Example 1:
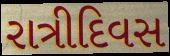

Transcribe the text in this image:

રાત્રીદિવસ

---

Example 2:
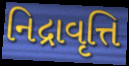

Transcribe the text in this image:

નિદ્રાવૃત્તિ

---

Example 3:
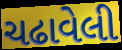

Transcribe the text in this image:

ચઢાવેલી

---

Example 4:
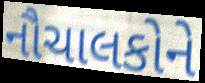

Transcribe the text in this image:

નૌચાલકોને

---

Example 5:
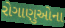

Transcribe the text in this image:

રોગાણુઓના